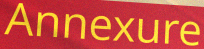
Annexure